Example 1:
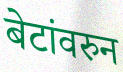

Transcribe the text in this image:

बेटांवरुन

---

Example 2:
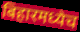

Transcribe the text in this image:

बिहारमध्येच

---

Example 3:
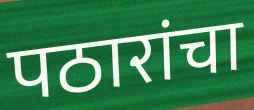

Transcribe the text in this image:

पठारांचा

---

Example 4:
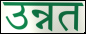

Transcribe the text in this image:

उन्नत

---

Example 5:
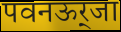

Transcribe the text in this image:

पवनऊर्जा